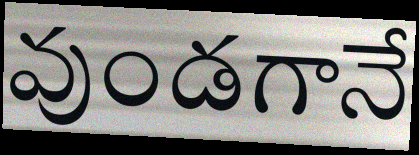
వుండగానే